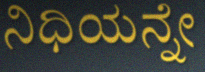
ನಿಧಿಯನ್ನೇ